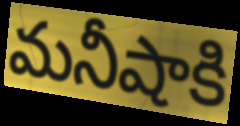
మనీషాకి